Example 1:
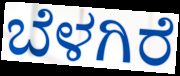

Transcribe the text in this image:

ಬೆಳಗಿರೆ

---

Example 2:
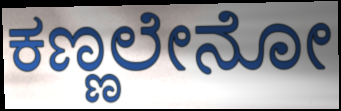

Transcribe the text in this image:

ಕಣ್ಣಲೇನೋ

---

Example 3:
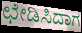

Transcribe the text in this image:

ಛೇಡಿಸಿದಾಗ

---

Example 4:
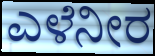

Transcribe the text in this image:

ಎಳೆನೀರ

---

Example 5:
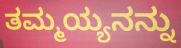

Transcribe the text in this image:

ತಮ್ಮಯ್ಯನನ್ನು